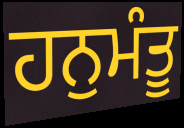
ਹਨੁਮੰਤੂ